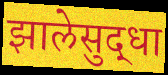
झालेसुद्धा